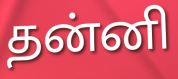
தன்னி